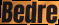
Bedre